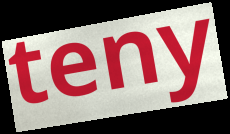
teny